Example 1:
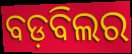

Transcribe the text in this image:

ବଡ଼ବିଲର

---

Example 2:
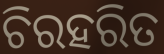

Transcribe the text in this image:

ଚିରହରିତ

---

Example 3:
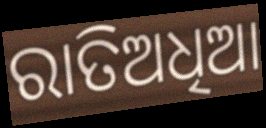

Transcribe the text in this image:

ରାତିଅଧିଆ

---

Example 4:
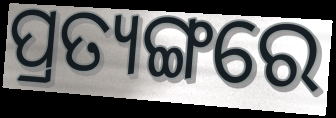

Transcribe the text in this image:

ପ୍ରତ୍ୟଙ୍ଗରେ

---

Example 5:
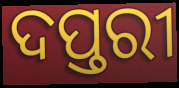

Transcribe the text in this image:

ଦପ୍ତରୀ